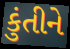
કુંતીને